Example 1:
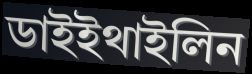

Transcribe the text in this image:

ডাইইথাইলিন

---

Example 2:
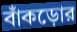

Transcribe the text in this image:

বাঁকড়োর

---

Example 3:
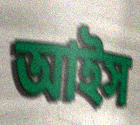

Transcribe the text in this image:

আইস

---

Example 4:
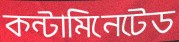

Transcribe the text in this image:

কন্টামিনেটেড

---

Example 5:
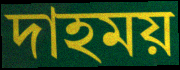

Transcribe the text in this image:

দাহময়